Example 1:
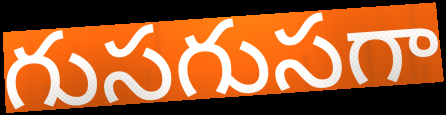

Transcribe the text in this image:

గుసగుసగా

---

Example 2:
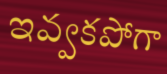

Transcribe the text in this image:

ఇవ్వకపోగా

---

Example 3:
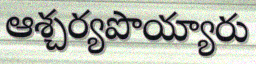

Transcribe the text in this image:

ఆశ్చర్యపొయ్యారు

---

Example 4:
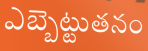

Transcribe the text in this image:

ఎబ్బెట్టుతనం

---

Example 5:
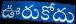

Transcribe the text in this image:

ఊరుకోదు